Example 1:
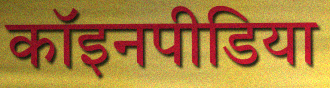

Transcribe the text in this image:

कॉइनपीडिया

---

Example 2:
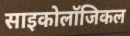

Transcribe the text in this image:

साइकोलॉजिकल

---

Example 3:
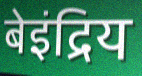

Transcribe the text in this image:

बेइंद्रिय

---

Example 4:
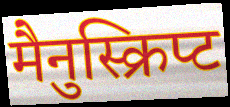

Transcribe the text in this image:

मैनुस्क्रिप्ट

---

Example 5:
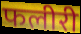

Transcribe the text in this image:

फलीरी